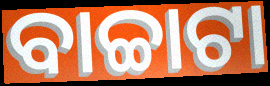
ବାଚ୍ଚାଟା